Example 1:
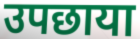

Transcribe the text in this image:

उपछाया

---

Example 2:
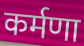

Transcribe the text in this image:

कर्मणा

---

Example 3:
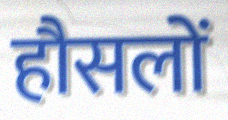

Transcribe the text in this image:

हौसलों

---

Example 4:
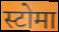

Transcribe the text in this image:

स्टोमा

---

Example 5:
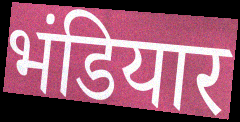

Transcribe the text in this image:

भंडियार